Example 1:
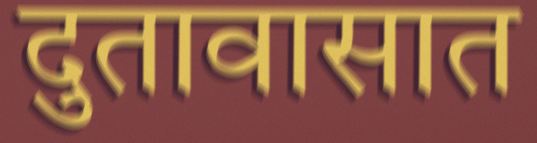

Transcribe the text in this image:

दुतावासात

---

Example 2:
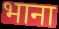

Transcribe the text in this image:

भाना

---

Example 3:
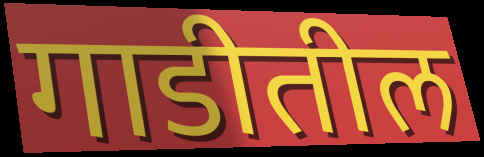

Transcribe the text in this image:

गाडीतील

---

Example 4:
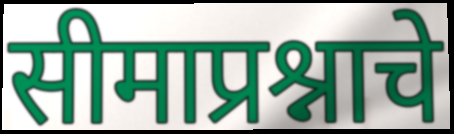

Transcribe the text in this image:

सीमाप्रश्नाचे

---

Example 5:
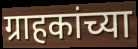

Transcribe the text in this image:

ग्राहकांच्या